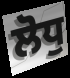
ਲੋਧੁ